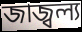
জাজ্বল্য